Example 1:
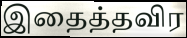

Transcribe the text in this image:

இதைத்தவிர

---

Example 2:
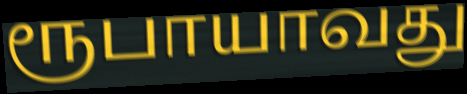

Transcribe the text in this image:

ரூபாயாவது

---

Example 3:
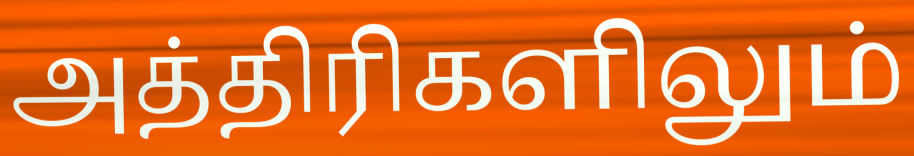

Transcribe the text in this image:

அத்திரிகளிலும்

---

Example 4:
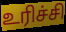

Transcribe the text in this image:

உரிச்சி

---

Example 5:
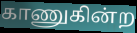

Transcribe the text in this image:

காணுகின்ற